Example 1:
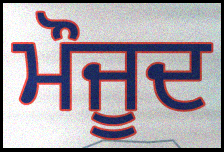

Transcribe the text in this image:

ਮੌਜੂਦ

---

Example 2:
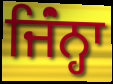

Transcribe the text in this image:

ਜਿੰਂਨ੍ਹਾ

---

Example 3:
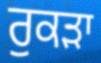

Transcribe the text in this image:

ਰੁਕੜਾ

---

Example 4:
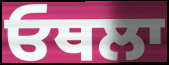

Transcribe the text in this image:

ਓਥਲਾ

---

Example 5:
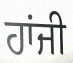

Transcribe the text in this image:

ਹਾਂਜੀ